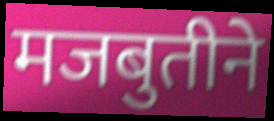
मजबुतीने